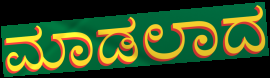
ಮಾಡಲಾದ